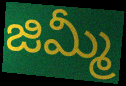
జిమ్మీ